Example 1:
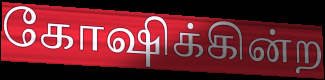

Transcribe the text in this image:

கோஷிக்கின்ற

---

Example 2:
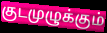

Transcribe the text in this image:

குடமுழுக்கும்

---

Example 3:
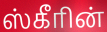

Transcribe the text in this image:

ஸ்கீரின்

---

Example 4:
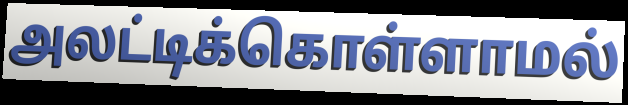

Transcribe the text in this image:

அலட்டிக்கொள்ளாமல்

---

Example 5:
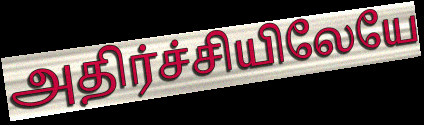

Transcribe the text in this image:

அதிர்ச்சியிலேயே